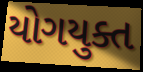
યોગયુક્ત